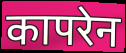
कापरेन